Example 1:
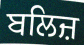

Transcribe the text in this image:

ਬਲਿਜ਼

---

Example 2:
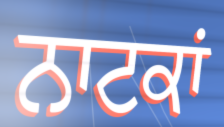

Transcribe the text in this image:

ਨਾਟਕਾਂ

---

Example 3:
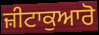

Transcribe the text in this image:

ਜ਼ੀਟਾਕੁਆਰੋ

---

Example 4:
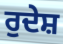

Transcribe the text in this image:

ਰੁਦੇਸ਼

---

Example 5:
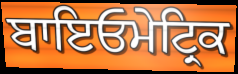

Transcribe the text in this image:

ਬਾਇਓਮੇਟ੍ਰਿਕ